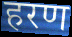
हरण